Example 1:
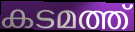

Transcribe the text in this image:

കടമത്ത്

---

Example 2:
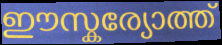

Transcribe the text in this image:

ഈസ്കര്യോത്ത്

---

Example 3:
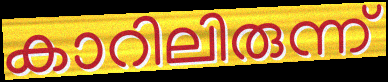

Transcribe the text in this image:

കാറിലിരുന്ന്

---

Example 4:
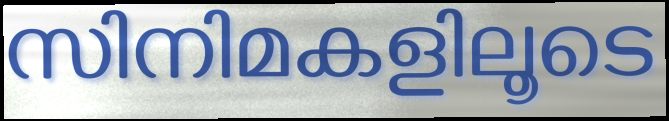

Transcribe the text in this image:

സിനിമകളിലൂടെ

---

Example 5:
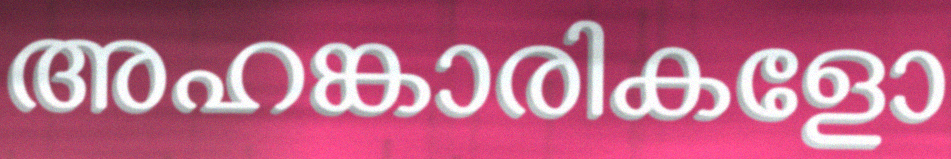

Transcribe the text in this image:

അഹങ്കാരികളോ